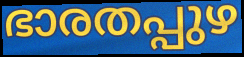
ഭാരതപ്പുഴ